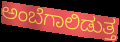
ಅಂಬೆಗಾಲಿಡುತ್ತ